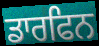
ਡਾਰਫਿਨ